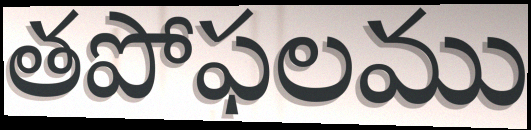
తపోఫలము